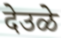
देउळे